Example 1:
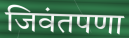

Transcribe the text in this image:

जिवंतपणा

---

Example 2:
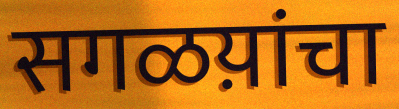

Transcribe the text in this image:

सगळय़ांचा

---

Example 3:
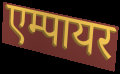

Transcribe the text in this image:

एम्पायर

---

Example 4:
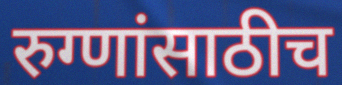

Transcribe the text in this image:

रुग्णांसाठीच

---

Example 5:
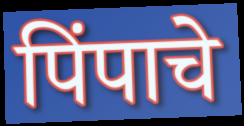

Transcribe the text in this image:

पिंपाचे